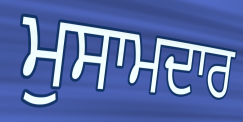
ਮੁਸਾਮਦਾਰ